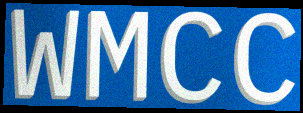
WMCC